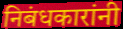
निबंधकारांनी